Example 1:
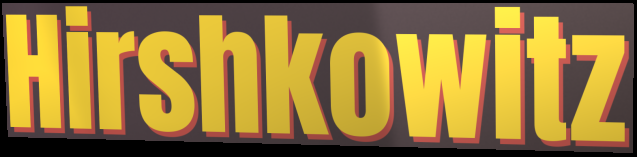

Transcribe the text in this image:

Hirshkowitz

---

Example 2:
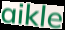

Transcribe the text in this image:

aikle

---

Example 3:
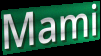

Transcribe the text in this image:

Mami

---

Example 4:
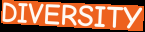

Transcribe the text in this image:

DIVERSITY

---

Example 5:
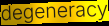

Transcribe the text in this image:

degeneracy